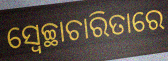
ସ୍ୱେଚ୍ଛାଚାରିତାରେ